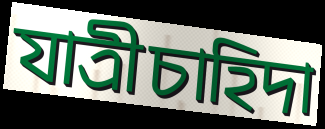
যাত্রীচাহিদা